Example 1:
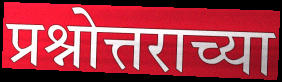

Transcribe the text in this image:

प्रश्नोत्तराच्या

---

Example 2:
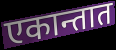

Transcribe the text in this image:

एकान्तात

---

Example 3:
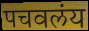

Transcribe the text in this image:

पचवलंय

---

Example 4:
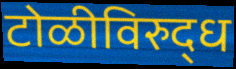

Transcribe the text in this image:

टोळीविरुद्ध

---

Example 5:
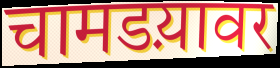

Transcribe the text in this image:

चामडय़ावर